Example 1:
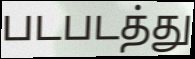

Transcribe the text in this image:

படபடத்து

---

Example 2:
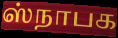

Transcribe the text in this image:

ஸ்நாபக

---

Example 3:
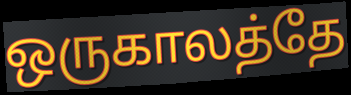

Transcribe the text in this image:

ஒருகாலத்தே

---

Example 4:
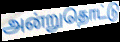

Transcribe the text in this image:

அன்றுதொட்டு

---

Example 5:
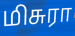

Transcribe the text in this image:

மிசுரா